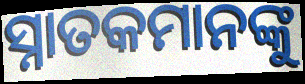
ସ୍ନାତକମାନଙ୍କୁ